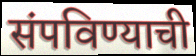
संपविण्याची